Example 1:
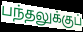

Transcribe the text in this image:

பந்தலுக்குப்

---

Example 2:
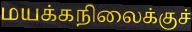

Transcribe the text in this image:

மயக்கநிலைக்குச்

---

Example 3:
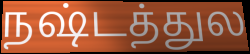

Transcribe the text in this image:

நஷ்டத்துல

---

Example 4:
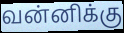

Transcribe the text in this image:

வன்னிக்கு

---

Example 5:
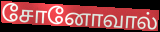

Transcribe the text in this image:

சோனோவால்